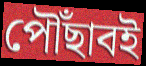
পৌঁছাবই